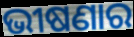
ଭୀଷଣାର